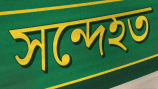
সন্দেহত